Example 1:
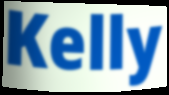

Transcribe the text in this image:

Kelly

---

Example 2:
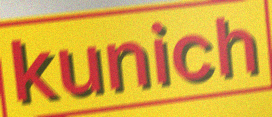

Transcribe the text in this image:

kunich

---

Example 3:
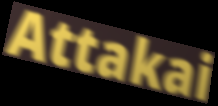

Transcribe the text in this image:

Attakai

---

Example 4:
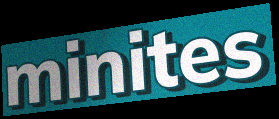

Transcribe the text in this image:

minites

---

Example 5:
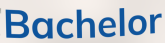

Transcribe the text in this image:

Bachelor